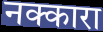
नक्कारा